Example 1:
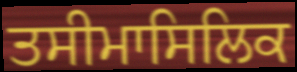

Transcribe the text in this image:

ਤਸੀਮਾਸਿਲਿਕ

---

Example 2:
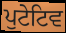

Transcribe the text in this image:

ਪੁਟੇਟਿਵ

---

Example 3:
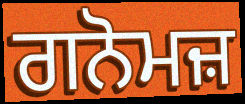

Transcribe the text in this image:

ਗਨੋਮਜ਼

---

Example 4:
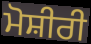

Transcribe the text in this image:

ਮੋਸ਼ੀਰੀ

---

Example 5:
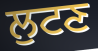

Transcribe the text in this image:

ਲੁਟਣ